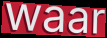
waar